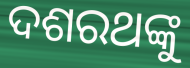
ଦଶରଥଙ୍କୁ